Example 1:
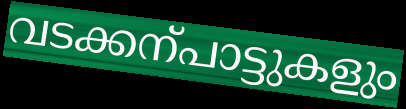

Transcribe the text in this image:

വടക്കന്പാട്ടുകളും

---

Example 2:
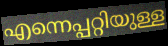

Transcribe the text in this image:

എന്നെപ്പറ്റിയുള്ള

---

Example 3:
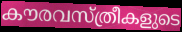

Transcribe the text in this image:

കൗരവസ്ത്രീകളുടെ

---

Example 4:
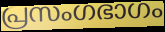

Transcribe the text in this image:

പ്രസംഗഭാഗം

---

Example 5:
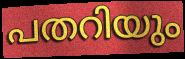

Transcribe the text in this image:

പതറിയും